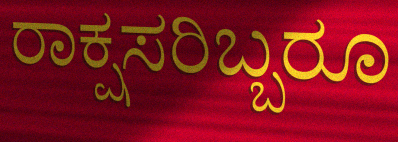
ರಾಕ್ಷಸರಿಬ್ಬರೂ